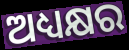
ଅଧ୍ୟକ୍ଷର